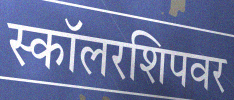
स्कॉलरशिपवर